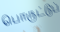
பொருட்டுப்